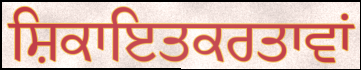
ਸ਼ਿਕਾਇਤਕਰਤਾਵਾਂ